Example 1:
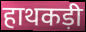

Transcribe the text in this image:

हाथकड़ी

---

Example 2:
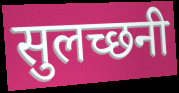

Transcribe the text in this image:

सुलच्छनी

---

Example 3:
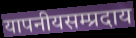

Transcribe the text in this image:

यापनीयसम्प्रदाय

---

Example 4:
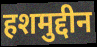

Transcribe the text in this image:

हशमुद्दीन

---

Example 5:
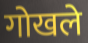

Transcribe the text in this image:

गोखले